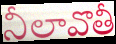
నీలావొతీ